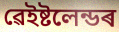
ৱেইষ্টলেন্ডৰ